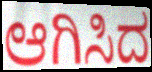
ಆಗಿಸಿದ